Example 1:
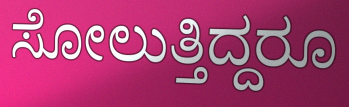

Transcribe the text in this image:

ಸೋಲುತ್ತಿದ್ದರೂ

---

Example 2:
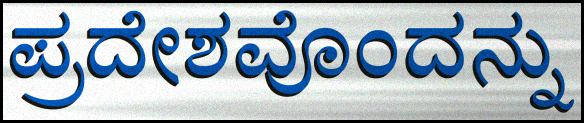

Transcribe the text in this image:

ಪ್ರದೇಶವೊಂದನ್ನು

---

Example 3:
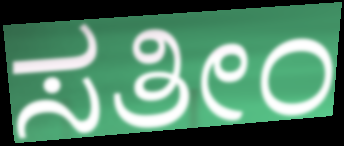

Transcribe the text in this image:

ಸತೀಂ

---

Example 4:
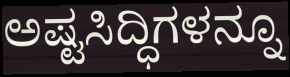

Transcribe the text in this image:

ಅಷ್ಟಸಿದ್ಧಿಗಳನ್ನೂ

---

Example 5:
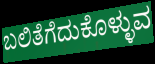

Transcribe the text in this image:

ಬಲಿತೆಗೆದುಕೊಳ್ಳುವ